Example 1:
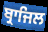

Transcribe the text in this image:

ਬ੍ਰਾਜਿਲ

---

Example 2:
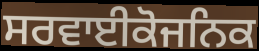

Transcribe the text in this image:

ਸਰਵਾਈਕੋਜਨਿਕ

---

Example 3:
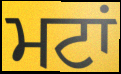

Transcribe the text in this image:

ਮਟਾਂ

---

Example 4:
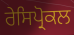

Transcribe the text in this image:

ਰੇਸਿਪ੍ਰੋਕਲ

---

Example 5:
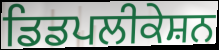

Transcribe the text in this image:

ਡਿਡਪਲੀਕੇਸ਼ਨ